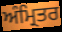
ਅੰਮ੍ਰਿਤਰ